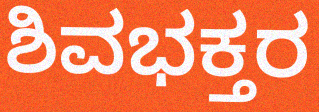
ಶಿವಭಕ್ತರ